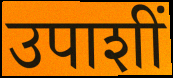
उपाशीं